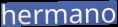
hermano